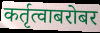
कर्तृत्वाबरोबर